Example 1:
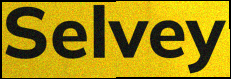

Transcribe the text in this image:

Selvey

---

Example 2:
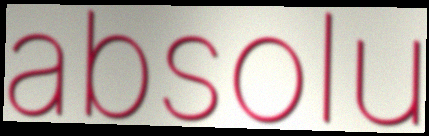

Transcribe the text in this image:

absolu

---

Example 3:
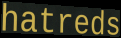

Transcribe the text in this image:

hatreds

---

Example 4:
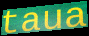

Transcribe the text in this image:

taua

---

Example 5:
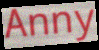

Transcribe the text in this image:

Anny